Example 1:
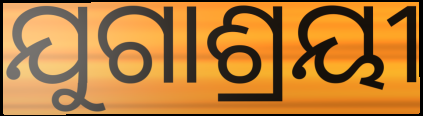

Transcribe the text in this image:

ଯୁଗାଶ୍ରୟୀ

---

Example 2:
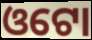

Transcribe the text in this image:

ଓଟୋ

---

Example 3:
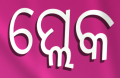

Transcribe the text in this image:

ପ୍ଲେକ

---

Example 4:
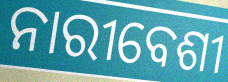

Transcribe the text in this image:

ନାରୀବେଶୀ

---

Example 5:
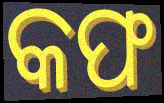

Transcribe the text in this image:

କଫ